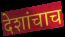
देशांचाच